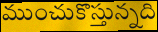
ముంచుకొస్తున్నది